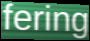
fering